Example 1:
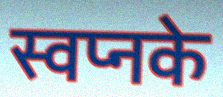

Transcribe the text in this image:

स्वप्नके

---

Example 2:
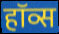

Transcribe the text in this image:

हॉव्स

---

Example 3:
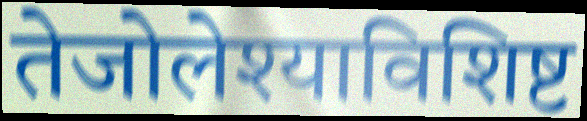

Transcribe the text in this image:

तेजोलेश्याविशिष्ट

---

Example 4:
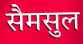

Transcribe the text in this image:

सैमसुल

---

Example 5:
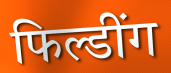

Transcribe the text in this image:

फिल्डींग